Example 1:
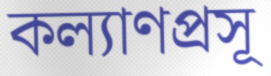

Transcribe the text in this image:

কল্যাণপ্রসূ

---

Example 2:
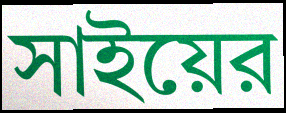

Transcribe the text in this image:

সাইয়ের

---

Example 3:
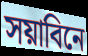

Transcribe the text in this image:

সয়াবিনে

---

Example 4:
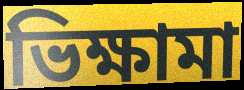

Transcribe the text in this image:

ভিক্ষামা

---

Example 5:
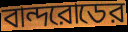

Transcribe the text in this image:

বান্দরোডের